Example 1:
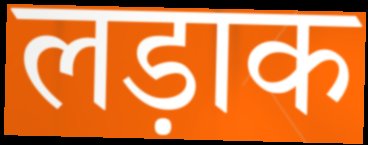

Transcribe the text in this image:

लड़ाक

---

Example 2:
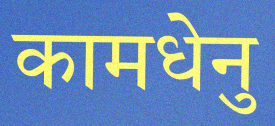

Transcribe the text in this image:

कामधेनु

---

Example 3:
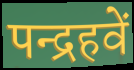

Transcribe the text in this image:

पन्द्रहवें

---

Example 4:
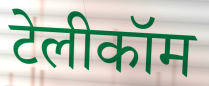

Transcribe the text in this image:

टेलीकॉम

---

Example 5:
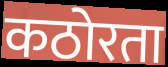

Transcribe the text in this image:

कठोरता